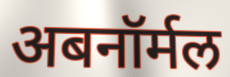
अबनॉर्मल